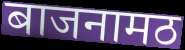
बाजनामठ